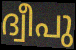
ദ്വീപു